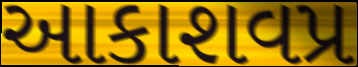
આકાશવપ્ર